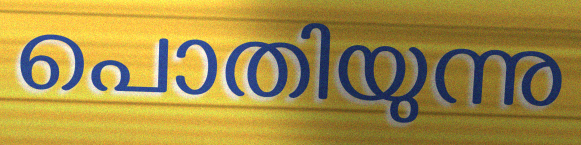
പൊതിയുന്നു